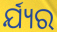
ର୍ଯ୍ୟର